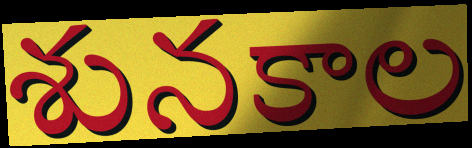
శునకాల